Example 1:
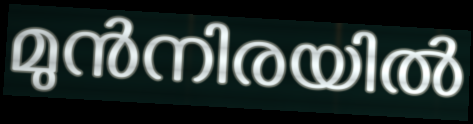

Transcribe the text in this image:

മുൻനിരയിൽ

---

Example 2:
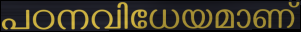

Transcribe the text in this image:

പഠനവിധേയമാണ്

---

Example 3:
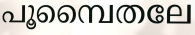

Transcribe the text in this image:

പൂമ്പൈതലേ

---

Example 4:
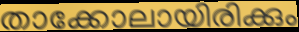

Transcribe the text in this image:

താക്കോലായിരിക്കും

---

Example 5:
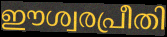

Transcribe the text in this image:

ഈശ്വരപ്രീതി